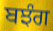
ਬਝੰਗ